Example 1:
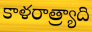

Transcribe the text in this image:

కాళరాత్ర్యాది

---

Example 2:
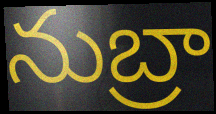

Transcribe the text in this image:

నుబ్రా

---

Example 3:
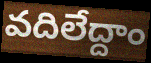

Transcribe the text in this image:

వదిలేద్దాం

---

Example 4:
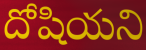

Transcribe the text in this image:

దోషియని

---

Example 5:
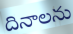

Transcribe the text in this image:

దినాలను